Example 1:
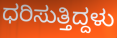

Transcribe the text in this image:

ಧರಿಸುತ್ತಿದ್ದಳು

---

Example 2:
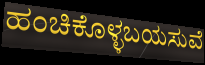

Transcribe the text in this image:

ಹಂಚಿಕೊಳ್ಳಬಯಸುವೆ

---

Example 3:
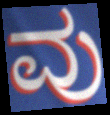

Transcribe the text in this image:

ವು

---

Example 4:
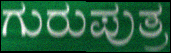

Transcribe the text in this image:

ಗುರುಪುತ್ರ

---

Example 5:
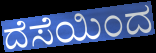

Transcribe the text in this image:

ದೆಸೆಯಿಂದ